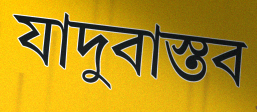
যাদুবাস্তব